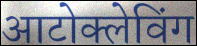
आटोक्लेविंग